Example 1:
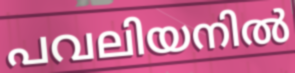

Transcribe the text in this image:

പവലിയനിൽ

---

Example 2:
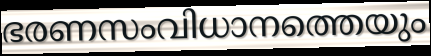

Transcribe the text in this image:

ഭരണസംവിധാനത്തെയും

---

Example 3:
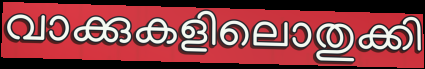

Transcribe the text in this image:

വാക്കുകളിലൊതുക്കി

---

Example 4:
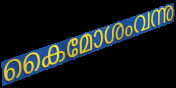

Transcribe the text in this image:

കൈമോശംവന്നു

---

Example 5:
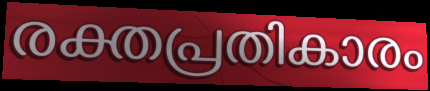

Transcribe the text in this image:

രക്തപ്രതികാരം